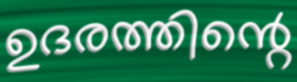
ഉദരത്തിന്റെ